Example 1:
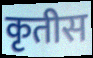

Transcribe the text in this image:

कृतीस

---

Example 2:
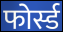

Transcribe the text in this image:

फोर्स्ड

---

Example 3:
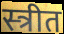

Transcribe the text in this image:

स्त्रीत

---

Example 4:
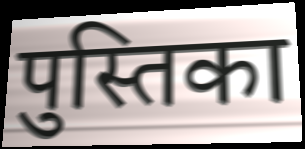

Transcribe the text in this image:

पुस्तिका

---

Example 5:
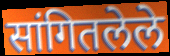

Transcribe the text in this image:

सांगितलेले